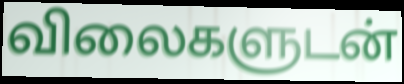
விலைகளுடன்